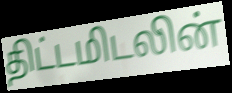
திட்டமிடலின்